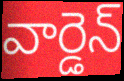
వార్డెన్